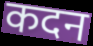
कदन